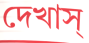
দেখাস্